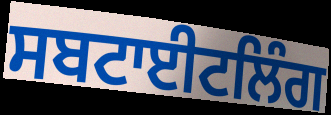
ਸਬਟਾਈਟਲਿੰਗ